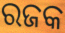
ରଜକ